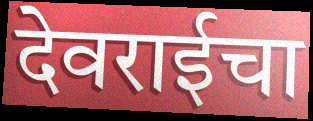
देवराईचा